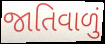
જાતિવાળું